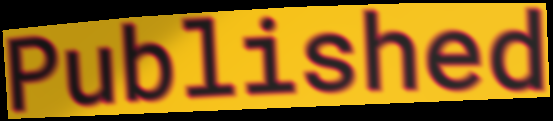
Published